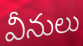
వీనులు